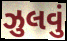
ઝુલવું